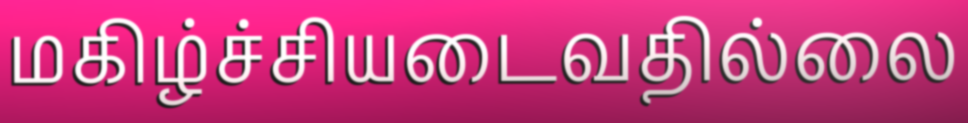
மகிழ்ச்சியடைவதில்லை